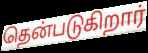
தென்படுகிறார்